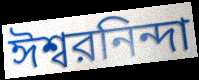
ঈশ্বরনিন্দা